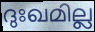
ദുഃഖമില്ല